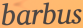
barbus